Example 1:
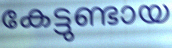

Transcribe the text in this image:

കേട്ടുണ്ടായ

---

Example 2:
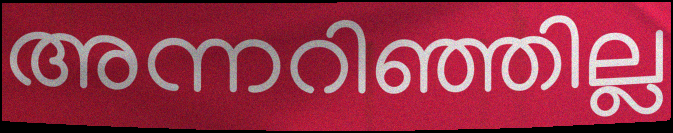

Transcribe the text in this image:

അന്നറിഞ്ഞില്ല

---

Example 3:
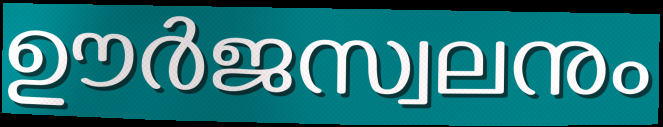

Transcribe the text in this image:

ഊർജസ്വലനും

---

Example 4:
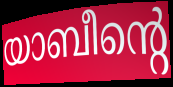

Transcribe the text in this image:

യാബീന്റെ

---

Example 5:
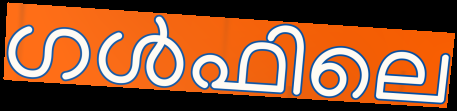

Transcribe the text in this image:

ഗൾഫിലെ